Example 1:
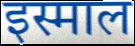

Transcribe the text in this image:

इस्माल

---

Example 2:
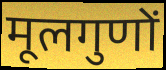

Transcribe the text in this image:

मूलगुणों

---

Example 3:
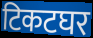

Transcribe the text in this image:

टिकटघर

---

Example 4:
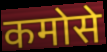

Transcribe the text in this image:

कमोसे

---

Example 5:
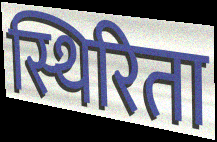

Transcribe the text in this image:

स्थिरिता